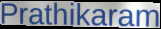
Prathikaram